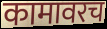
कामावरच